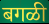
बगळी